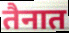
तैनात